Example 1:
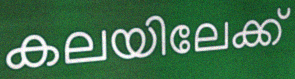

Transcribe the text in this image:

കലയിലേക്ക്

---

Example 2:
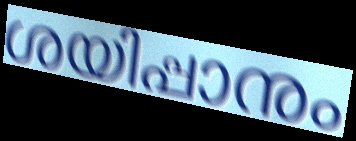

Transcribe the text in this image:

ശയിപ്പാനും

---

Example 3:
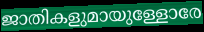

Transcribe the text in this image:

ജാതികളുമായുള്ളോരേ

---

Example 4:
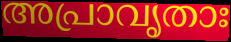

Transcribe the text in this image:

അപ്രാവൃതാഃ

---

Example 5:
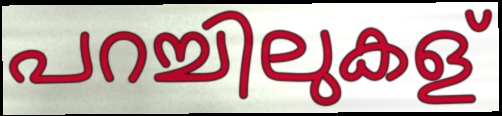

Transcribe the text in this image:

പറച്ചിലുകള്